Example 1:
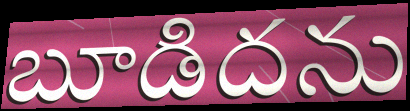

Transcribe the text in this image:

బూడిదను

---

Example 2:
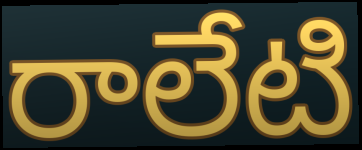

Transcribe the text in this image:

రాలేటి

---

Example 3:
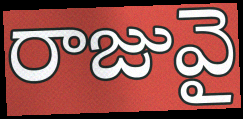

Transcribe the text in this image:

రాజువై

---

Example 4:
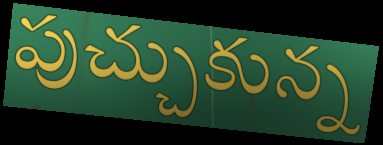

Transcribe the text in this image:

పుచ్చుకున్న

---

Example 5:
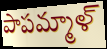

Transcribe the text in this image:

పాపమ్మాళ్